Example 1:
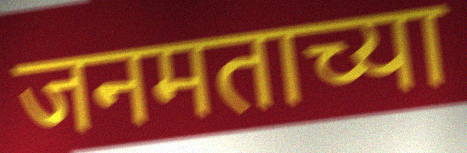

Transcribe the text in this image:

जनमताच्या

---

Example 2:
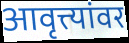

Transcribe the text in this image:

आवृत्त्यांवर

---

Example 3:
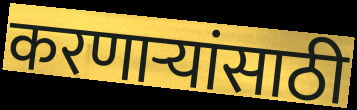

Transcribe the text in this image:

करणार्‍यांसाठी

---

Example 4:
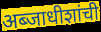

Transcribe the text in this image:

अब्जाधीशांची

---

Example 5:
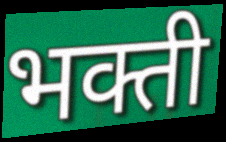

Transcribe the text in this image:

भक्ती